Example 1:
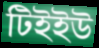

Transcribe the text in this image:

টিইইউ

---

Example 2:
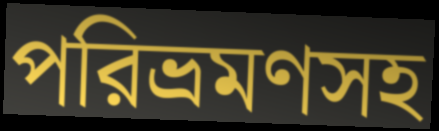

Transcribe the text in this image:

পরিভ্রমণসহ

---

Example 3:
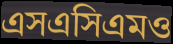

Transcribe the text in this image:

এসএসিএমও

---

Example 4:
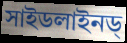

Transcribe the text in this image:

সাইডলাইনড্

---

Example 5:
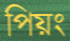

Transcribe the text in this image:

পিয়ং